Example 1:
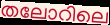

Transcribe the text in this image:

തലോറിലെ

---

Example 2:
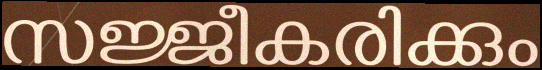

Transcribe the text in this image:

സജ്ജീകരിക്കും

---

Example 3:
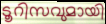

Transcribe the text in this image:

ടൂറിസവുമായി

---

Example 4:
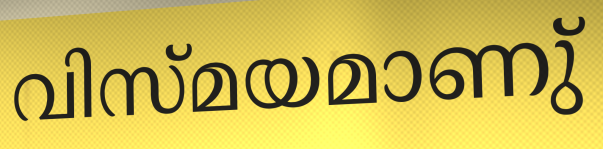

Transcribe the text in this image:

വിസ്മയമാണു്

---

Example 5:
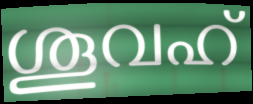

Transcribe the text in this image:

ശൂവഹ്